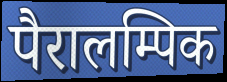
पैरालम्पिक